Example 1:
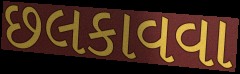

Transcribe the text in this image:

છલકાવવા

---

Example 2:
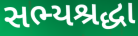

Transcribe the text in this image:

સભ્યશ્રદ્ધા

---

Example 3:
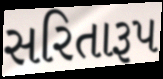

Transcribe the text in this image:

સરિતારૂપ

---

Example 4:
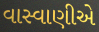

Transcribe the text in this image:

વાસ્વાણીએ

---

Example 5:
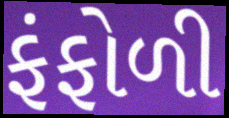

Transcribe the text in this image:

ફંફોળી